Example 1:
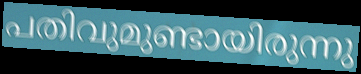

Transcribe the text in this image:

പതിവുമുണ്ടായിരുന്നു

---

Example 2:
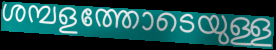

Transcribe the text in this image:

ശമ്പളത്തോടെയുള്ള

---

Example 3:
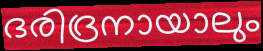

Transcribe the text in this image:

ദരിദ്രനായാലും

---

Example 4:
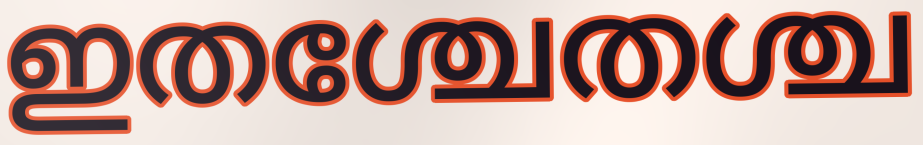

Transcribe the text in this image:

ഇതശ്ചേതശ്ച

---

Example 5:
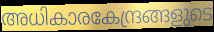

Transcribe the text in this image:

അധികാരകേന്ദ്രങ്ങളുടെ